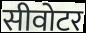
सीवोटर